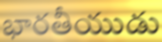
భారతీయుడు